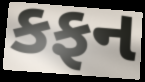
કફન